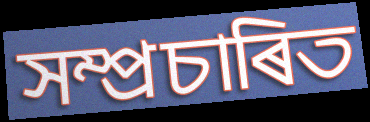
সম্প্ৰচাৰিত